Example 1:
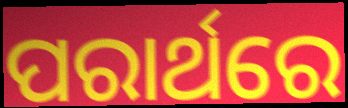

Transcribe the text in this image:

ପରାର୍ଥରେ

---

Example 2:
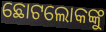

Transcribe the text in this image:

ଛୋଟଲୋକଙ୍କୁ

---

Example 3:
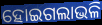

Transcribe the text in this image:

ହୋଇଗଲାଭଳି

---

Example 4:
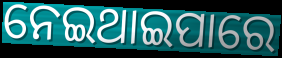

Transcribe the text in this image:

ନେଇଥାଇପାରେ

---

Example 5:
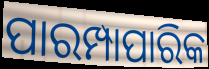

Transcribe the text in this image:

ପାରମ୍ପାପାରିକ